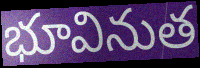
భూవినుత